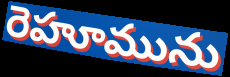
రెహూమును